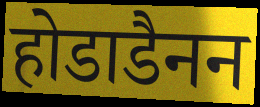
होडाडैनन